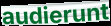
audierunt